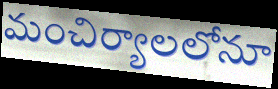
మంచిర్యాలలోనూ